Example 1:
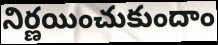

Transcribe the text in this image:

నిర్ణయించుకుందాం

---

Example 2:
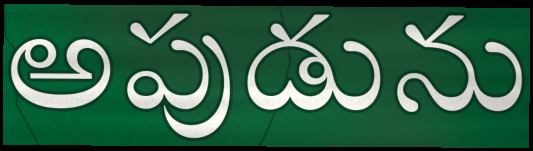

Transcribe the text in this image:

అపుడును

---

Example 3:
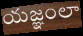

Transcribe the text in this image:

యజ్ఞంలా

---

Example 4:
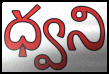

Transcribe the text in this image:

ధ్వని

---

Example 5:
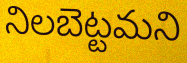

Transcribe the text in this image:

నిలబెట్టమని